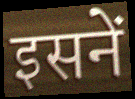
इसनें